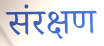
संरक्षण